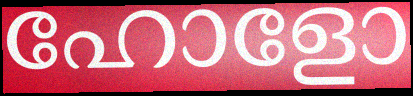
ഹോളോ